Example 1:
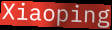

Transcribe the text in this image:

Xiaoping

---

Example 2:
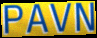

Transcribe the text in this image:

PAVN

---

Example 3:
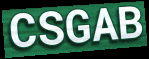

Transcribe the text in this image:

CSGAB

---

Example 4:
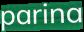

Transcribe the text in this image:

parina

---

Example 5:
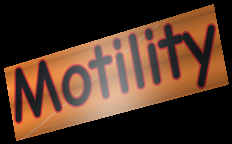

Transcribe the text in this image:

Motility